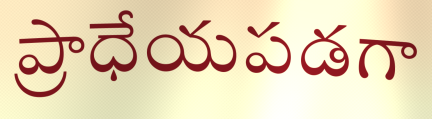
ప్రాధేయపడగా